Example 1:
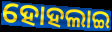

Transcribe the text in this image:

ହୋହଲାଇ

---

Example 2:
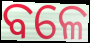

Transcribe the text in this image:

ବଳେ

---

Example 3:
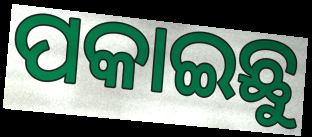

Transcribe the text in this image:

ପକାଇଛୁ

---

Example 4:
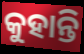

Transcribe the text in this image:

କୁହାନ୍ତି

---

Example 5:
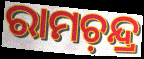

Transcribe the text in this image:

ରାମଚ଼ନ୍ଦ୍ର